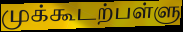
முக்கூடற்பள்ளு